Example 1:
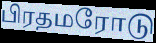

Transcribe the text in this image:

பிரதமரோடு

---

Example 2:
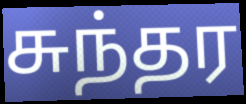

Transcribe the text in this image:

சுந்தர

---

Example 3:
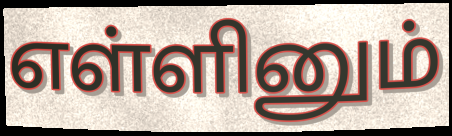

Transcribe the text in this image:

எள்ளினும்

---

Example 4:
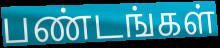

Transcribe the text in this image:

பண்டங்கள்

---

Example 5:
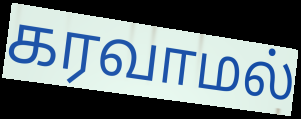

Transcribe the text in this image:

கரவாமல்